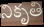
నికృతి